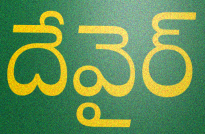
దేవైర్